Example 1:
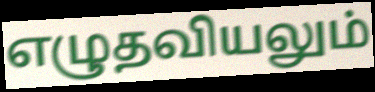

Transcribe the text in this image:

எழுதவியலும்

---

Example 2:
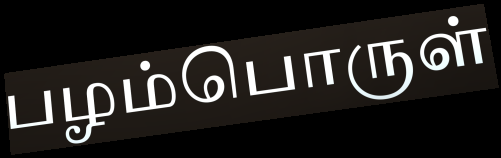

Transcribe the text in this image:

பழம்பொருள்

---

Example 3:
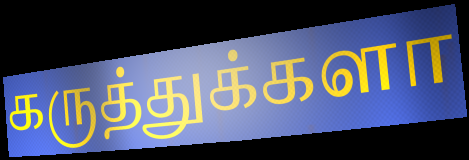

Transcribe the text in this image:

கருத்துக்களா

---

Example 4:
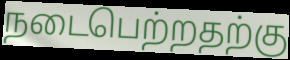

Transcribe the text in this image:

நடைபெற்றதற்கு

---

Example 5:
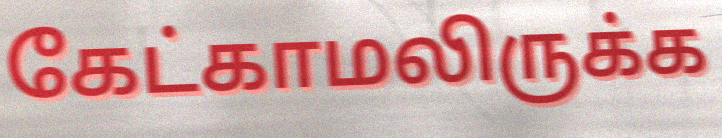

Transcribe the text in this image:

கேட்காமலிருக்க